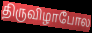
திருவிழாபோல